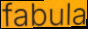
fabula